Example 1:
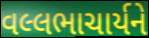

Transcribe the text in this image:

વલ્લભાચાર્યને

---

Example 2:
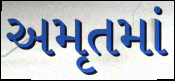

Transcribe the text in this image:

અમૃતમાં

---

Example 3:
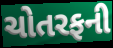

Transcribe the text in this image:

ચોતરફની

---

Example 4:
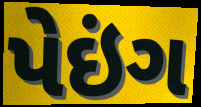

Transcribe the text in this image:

પેઇંગ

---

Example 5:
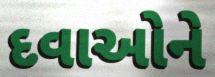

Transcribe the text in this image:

દવાઓને